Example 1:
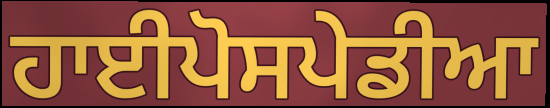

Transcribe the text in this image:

ਹਾਈਪੋਸਪੇਡੀਆ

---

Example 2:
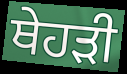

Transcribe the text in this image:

ਥੇਹੜੀ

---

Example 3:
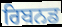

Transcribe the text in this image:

ਰਿਬਨਡ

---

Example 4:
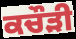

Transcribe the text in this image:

ਕਚੌੜੀ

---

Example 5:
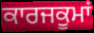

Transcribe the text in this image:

ਕਾਰਜਕੂਮਾਂ